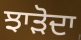
ਝਾੜੋਦਾ